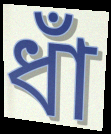
ধাঁ